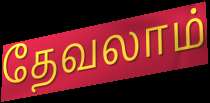
தேவலாம்